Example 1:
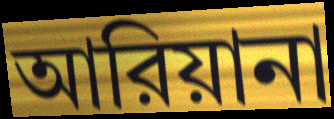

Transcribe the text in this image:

আরিয়ানা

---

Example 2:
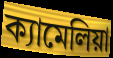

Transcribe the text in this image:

ক্যামেলিয়া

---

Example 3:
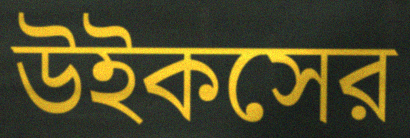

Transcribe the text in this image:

উইকসের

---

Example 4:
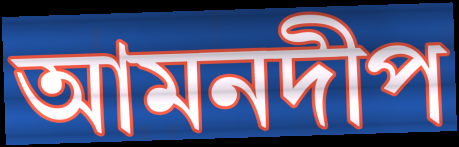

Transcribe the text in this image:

আমনদীপ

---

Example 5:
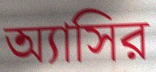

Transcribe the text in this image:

অ্যাসির